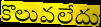
కొలువలేదు